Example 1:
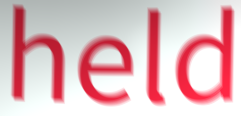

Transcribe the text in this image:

held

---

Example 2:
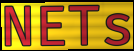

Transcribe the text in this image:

NETs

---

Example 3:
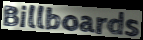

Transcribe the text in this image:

Billboards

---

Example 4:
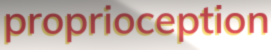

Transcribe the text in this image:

proprioception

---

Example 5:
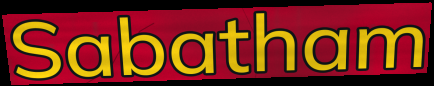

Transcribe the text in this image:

Sabatham